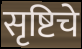
सृष्टिचे